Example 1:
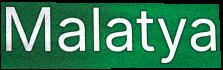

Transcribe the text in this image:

Malatya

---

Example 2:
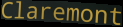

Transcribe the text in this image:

Claremont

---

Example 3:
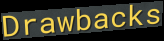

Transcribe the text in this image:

Drawbacks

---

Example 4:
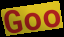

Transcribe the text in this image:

Goo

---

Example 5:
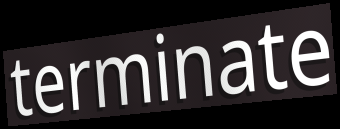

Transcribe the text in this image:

terminate